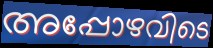
അപ്പോഴവിടെ